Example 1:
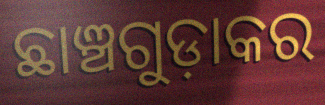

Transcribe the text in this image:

ଛାଞ୍ଚଗୁଡ଼ାକର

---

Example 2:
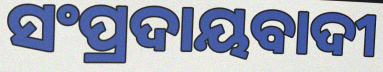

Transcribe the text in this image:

ସଂପ୍ରଦାୟବାଦୀ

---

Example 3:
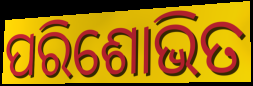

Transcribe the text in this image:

ପରିଶୋଭିତ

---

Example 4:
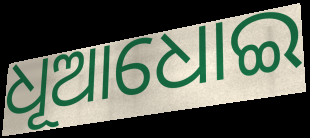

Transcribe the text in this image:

ଧୂଆଧୋଇ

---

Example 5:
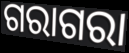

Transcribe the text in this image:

ଗରାଗରା